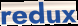
redux